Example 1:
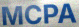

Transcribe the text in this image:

MCPA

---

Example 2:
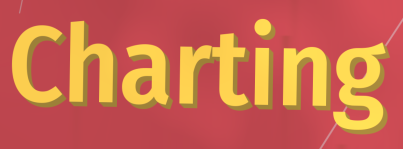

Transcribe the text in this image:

Charting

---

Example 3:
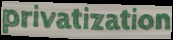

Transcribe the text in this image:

privatization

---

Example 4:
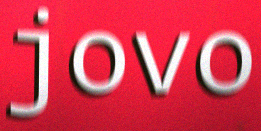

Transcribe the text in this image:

jovo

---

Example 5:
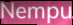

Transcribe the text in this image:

Nempu